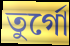
তুর্গো